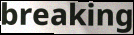
breaking